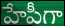
హేపీగా